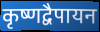
कृष्णद्वैपायन